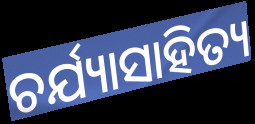
ଚର୍ଯ୍ୟାସାହିତ୍ୟ